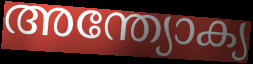
അന്ത്യോക്യ